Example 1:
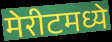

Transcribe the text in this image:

मेरीटमध्ये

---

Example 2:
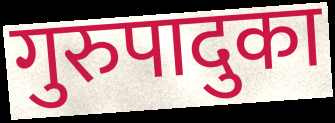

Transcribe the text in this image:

गुरुपादुका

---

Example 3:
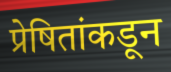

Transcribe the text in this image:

प्रेषितांकडून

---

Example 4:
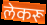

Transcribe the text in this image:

लेकरू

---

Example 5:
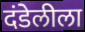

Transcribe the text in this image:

दंडेलीला